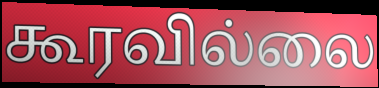
கூரவில்லை